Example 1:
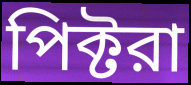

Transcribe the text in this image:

পিক্টরা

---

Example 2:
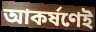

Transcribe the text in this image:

আকর্ষণেই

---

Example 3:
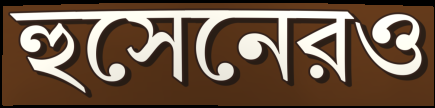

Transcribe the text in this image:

হুসেনেরও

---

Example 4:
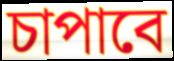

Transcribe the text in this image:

চাপাবে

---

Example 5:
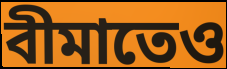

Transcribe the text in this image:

বীমাতেও